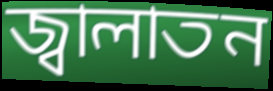
জ্বালাতন